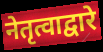
नेतृत्वाद्वारे